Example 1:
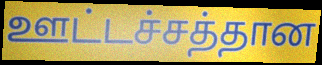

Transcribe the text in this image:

ஊட்டச்சத்தான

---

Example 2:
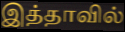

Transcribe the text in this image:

இத்தாவில்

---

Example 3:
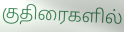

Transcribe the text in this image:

குதிரைகளில்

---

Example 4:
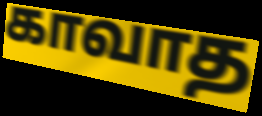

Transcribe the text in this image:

காவாத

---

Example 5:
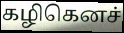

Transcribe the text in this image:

கழிகெனச்